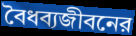
বৈধব্যজীবনের